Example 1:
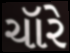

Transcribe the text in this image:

ચૉરે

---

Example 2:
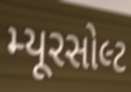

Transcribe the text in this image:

મ્યૂરસોલ્ટ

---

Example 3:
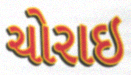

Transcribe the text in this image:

ચોરાઇ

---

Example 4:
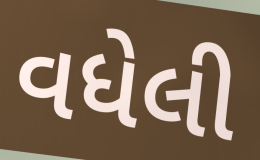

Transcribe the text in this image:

વધેલી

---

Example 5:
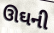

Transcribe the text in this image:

ઊઘની